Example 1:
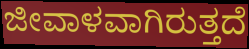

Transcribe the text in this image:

ಜೀವಾಳವಾಗಿರುತ್ತದೆ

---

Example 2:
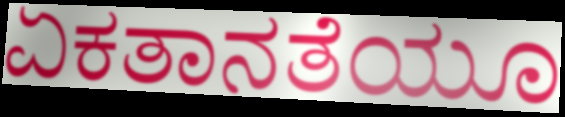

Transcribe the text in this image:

ಏಕತಾನತೆಯೂ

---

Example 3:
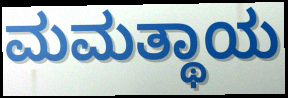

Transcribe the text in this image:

ಮಮತ್ಥಾಯ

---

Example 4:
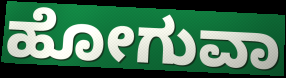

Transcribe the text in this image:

ಹೋಗುವಾ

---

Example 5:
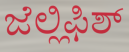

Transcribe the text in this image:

ಜೆಲ್ಲಿಫಿಶ್